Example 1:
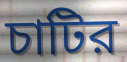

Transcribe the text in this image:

চাটির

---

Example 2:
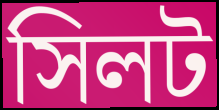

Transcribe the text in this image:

সিলট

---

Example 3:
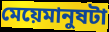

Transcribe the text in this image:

মেয়েমানুষটা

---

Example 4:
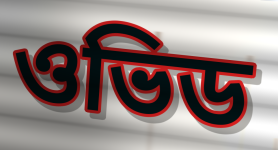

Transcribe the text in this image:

ওভিড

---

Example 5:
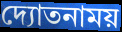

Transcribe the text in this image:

দ্যোতনাময়